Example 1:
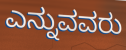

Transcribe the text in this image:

ಎನ್ನುವವರು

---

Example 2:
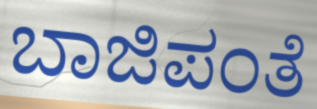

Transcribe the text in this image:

ಬಾಜಿಪಂತೆ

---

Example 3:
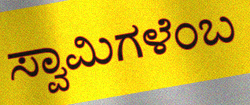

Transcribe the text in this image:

ಸ್ವಾಮಿಗಳೆಂಬ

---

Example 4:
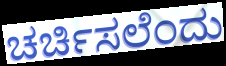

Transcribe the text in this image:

ಚರ್ಚಿಸಲೆಂದು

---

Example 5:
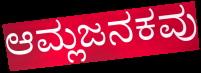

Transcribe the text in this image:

ಆಮ್ಲಜನಕವು